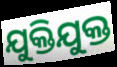
ଯୁକ୍ତିଯୁକ୍ତ